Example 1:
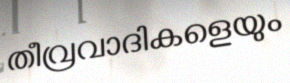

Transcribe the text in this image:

തീവ്രവാദികളെയും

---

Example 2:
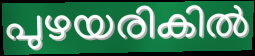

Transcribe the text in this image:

പുഴയരികിൽ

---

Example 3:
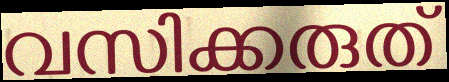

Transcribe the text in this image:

വസിക്കരുത്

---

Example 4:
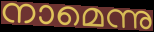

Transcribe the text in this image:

നാമെന്നു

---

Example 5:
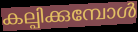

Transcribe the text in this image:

കല്പിക്കുമ്പോൾ